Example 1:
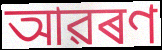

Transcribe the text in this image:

আৱৰণ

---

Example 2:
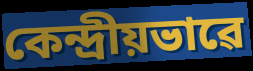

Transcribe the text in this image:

কেন্দ্ৰীয়ভাৱে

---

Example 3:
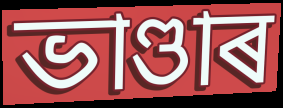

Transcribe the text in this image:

ভাণ্ডাৰ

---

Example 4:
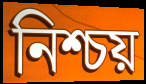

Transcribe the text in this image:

নিশ্চয়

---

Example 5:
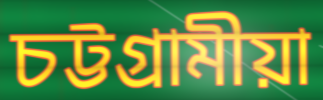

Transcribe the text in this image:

চট্টগ্ৰামীয়া